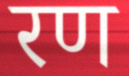
रण